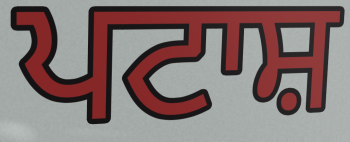
ਪਟਾਸ਼